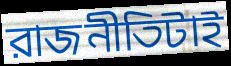
রাজনীতিটাই